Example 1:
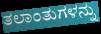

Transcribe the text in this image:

ತಲಾಂತುಗಳನ್ನು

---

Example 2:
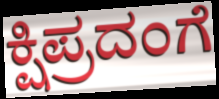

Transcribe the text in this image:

ಕ್ಷಿಪ್ರದಂಗೆ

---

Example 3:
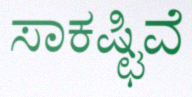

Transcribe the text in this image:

ಸಾಕಷ್ಟಿವೆ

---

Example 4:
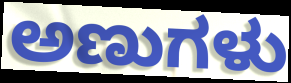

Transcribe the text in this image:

ಅಣುಗಳು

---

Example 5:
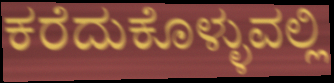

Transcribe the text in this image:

ಕರೆದುಕೊಳ್ಳುವಲ್ಲಿ